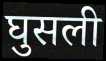
घुसली